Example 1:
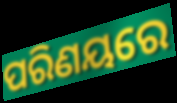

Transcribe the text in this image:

ପରିଣୟରେ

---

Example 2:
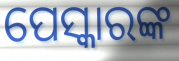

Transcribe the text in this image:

ପେସ୍କାରଙ୍କ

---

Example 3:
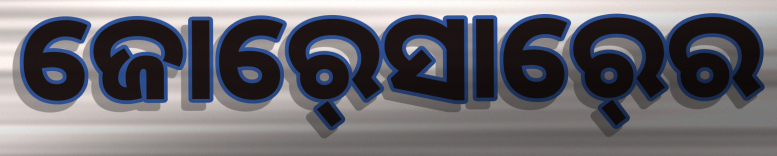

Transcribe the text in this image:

ଜୋର୍‍ସୋର୍‍ରେ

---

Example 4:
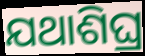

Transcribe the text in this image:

ଯଥାଶିଘ୍ର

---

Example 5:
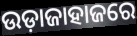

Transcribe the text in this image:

ଉଡ଼ାଜାହାଜରେ